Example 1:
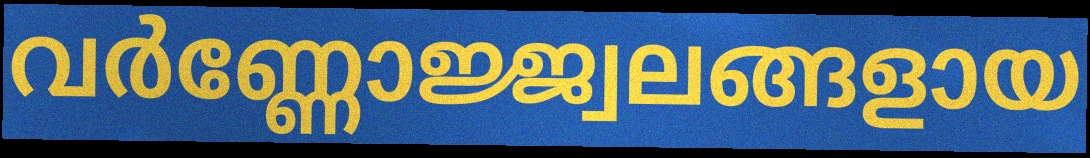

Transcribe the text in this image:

വർണ്ണോജ്ജ്വലങ്ങളായ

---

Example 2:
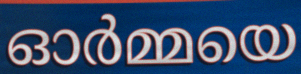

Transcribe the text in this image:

ഓർമ്മയെ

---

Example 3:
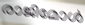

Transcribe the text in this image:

രാജിമോൾ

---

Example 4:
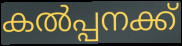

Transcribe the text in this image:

കൽപ്പനക്ക്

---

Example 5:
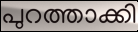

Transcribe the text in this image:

പുറത്താക്കി